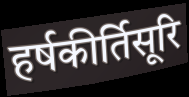
हर्षकीर्तिसूरि